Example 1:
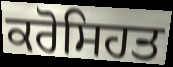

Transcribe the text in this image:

ਕਰੋਸਿਹਤ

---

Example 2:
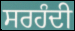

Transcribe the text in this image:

ਸਰਹੰਦੀ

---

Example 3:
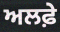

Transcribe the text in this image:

ਅਲਫ਼ੇ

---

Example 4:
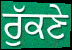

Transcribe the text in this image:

ਰੁੱਕਣੇ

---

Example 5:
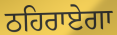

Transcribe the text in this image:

ਠਹਿਰਾਏਗਾ